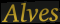
Alves